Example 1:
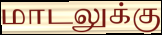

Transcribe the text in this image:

மாடலுக்கு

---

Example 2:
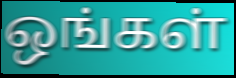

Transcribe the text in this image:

ஒங்கள்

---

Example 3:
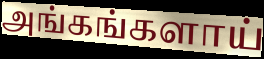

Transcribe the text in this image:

அங்கங்களாய்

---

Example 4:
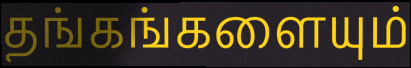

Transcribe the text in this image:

தங்கங்களையும்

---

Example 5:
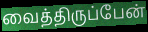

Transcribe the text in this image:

வைத்திருப்பேன்